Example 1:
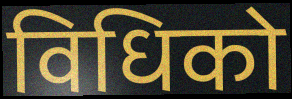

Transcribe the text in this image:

विधिको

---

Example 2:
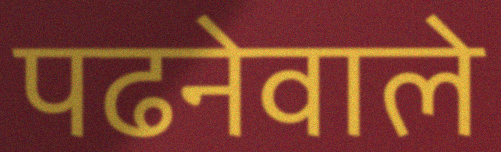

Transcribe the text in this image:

पढनेवाले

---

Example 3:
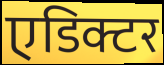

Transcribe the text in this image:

एडिक्टर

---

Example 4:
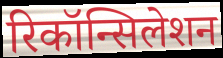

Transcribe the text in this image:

रिकॉन्सिलेशन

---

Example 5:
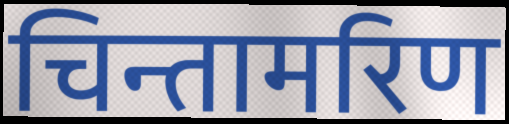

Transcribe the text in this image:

चिन्तामरिण